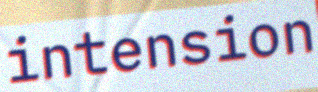
intension